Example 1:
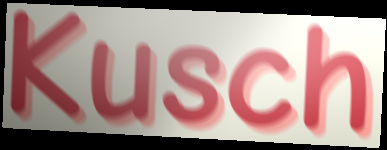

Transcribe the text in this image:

Kusch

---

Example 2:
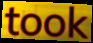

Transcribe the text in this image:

took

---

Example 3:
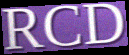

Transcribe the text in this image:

RCD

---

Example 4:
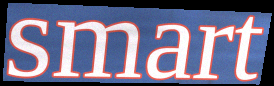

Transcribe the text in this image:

smart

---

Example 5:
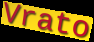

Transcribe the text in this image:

Vrato